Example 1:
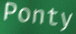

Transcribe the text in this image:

Ponty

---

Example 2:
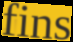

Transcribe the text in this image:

fins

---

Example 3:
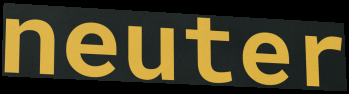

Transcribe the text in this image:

neuter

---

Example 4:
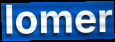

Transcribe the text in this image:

lomer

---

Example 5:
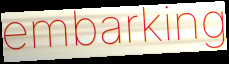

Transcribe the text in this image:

embarking